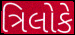
ત્રિલોકે